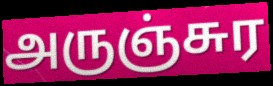
அருஞ்சுர